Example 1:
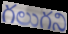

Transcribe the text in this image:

గలుగని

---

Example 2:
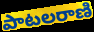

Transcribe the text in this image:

పాటలరాణి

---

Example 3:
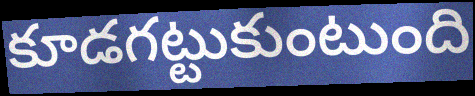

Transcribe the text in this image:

కూడగట్టుకుంటుంది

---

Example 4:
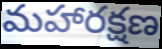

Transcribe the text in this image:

మహారక్షణ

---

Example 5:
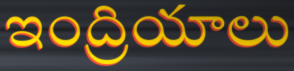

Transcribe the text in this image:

ఇంద్రియాలు